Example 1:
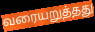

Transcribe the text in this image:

வரையறுத்தது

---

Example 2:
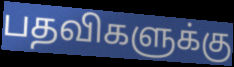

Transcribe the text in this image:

பதவிகளுக்கு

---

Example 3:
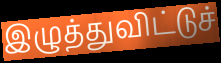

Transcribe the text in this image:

இழுத்துவிட்டுச்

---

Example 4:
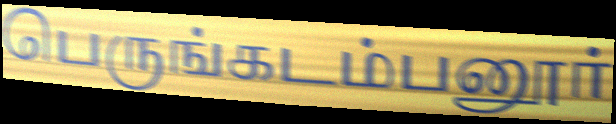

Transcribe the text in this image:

பெருங்கடம்பனூர்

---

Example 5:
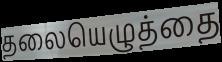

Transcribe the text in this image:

தலையெழுத்தை